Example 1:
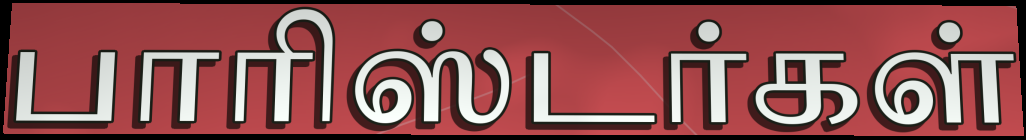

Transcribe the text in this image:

பாரிஸ்டர்கள்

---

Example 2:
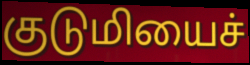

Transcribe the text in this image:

குடுமியைச்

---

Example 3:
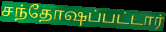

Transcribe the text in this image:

சந்தோஷப்பட்டார்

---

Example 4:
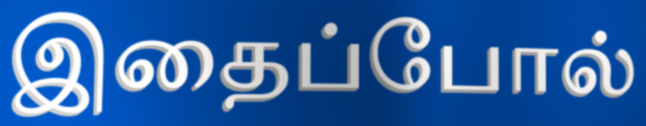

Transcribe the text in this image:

இதைப்போல்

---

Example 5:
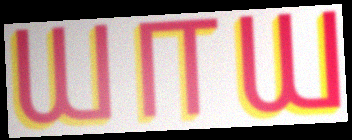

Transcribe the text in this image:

யாய